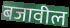
बजावील